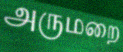
அருமறை